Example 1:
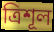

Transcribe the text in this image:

ত্রিশূল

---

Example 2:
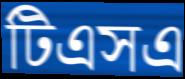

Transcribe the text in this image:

টিএসএ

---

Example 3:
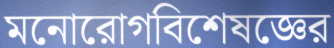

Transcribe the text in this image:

মনোরোগবিশেষজ্ঞের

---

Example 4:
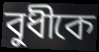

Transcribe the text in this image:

বুধীকে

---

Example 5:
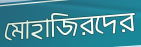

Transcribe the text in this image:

মোহাজিরদের